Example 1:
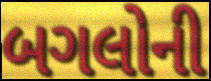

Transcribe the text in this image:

બગલોની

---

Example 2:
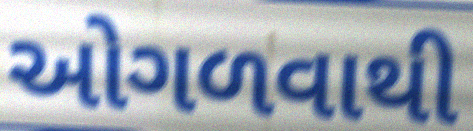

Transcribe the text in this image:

ઓગળવાથી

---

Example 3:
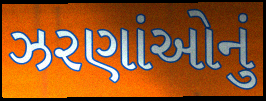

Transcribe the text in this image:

ઝરણાંઓનું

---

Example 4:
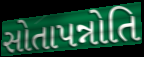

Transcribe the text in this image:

સોતાપન્નોતિ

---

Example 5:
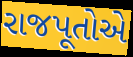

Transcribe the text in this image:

રાજપૂતોએ